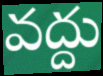
వద్దు